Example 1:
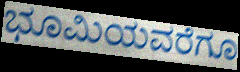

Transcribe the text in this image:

ಭೂಮಿಯವರೆಗೂ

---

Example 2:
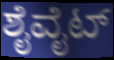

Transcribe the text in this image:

ಶೈವೈಟ್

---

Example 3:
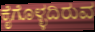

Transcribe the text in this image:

ಕೈಗೊಳ್ಳದಿರುವ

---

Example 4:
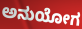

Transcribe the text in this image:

ಅನುಯೋಗ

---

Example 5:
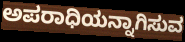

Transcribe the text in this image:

ಅಪರಾಧಿಯನ್ನಾಗಿಸುವ